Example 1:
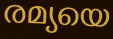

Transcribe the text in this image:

രമ്യയെ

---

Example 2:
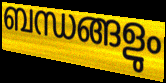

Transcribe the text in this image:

ബന്ധങ്ങളും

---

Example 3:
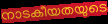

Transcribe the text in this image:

നാടകീയതയുടെ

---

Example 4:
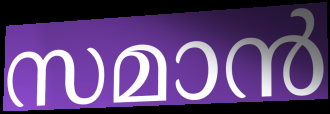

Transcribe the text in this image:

സമാൻ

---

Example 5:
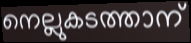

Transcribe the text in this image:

നെല്ലുകടത്താന്